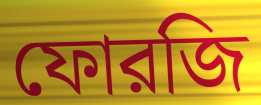
ফোরজি